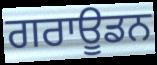
ਗਰਾਊਡਨ